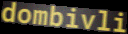
dombivli